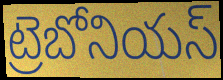
ట్రెబోనియస్